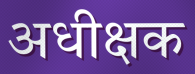
अधीक्षक